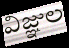
విజ్ఞుల